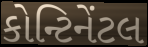
કોન્ટિનેંટલ